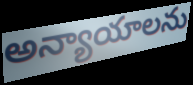
అన్యాయాలను